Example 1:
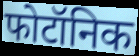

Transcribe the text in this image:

फोटॉनिक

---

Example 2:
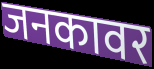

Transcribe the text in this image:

जनकावर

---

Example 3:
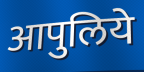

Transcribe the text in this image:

आपुलिये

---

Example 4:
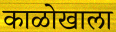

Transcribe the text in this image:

काळोखाला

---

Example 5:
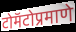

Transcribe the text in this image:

टोमॅटोप्रमाणे